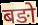
बङो